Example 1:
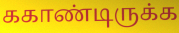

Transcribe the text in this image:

ககாண்டிருக்க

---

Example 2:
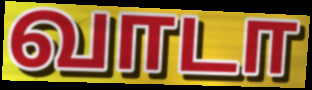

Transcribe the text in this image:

வாடா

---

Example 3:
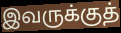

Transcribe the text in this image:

இவருக்குத்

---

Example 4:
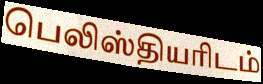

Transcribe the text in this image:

பெலிஸ்தியரிடம்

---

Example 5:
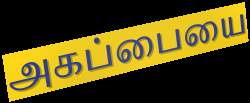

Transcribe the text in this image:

அகப்பையை